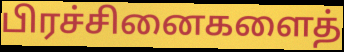
பிரச்சினைகளைத்